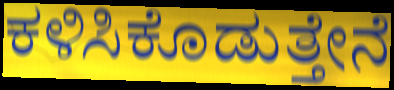
ಕಳಿಸಿಕೊಡುತ್ತೇನೆ